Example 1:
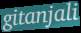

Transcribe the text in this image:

gitanjali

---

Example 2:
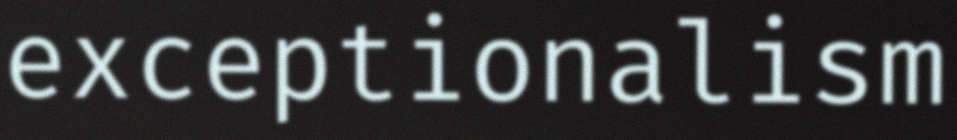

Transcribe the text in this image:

exceptionalism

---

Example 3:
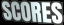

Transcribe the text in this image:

SCORES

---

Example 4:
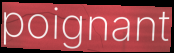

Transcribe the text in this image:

poignant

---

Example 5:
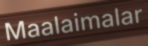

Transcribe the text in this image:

Maalaimalar